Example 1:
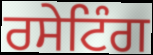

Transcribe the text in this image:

ਰਸੇਟਿੰਗ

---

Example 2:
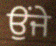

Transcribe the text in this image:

ਉਂਜੇ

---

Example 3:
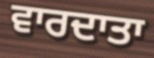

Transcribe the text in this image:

ਵਾਰਦਾਤਾ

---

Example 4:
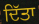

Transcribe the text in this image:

ਦਿੱਤਾ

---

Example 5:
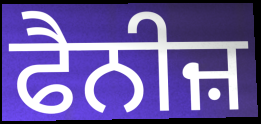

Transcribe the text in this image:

ਫੈਨੀਜ਼